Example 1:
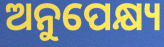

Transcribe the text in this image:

ଅନୁପେକ୍ଷ୍ୟ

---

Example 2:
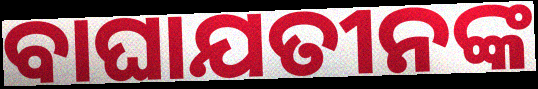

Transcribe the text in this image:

ବାଘାଯତୀନଙ୍କ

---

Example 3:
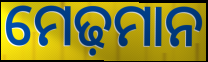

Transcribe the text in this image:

ମେଢ଼ମାନ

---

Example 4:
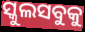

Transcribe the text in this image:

ସ୍କୁଲସବୁକୁ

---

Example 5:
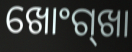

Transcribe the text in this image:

ଖୋଂଗ୍‍ଖା